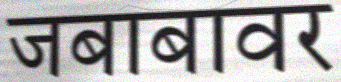
जबाबावर